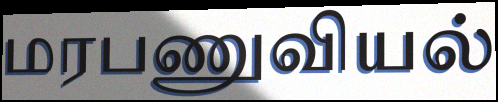
மரபணுவியல்